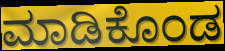
ಮಾಡಿಕೊಂಡ